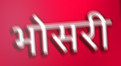
भोसरी